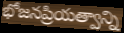
భోజనప్రియత్వాన్ని